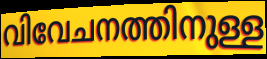
വിവേചനത്തിനുള്ള